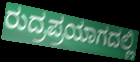
ರುದ್ರಪ್ರಯಾಗದಲ್ಲಿ